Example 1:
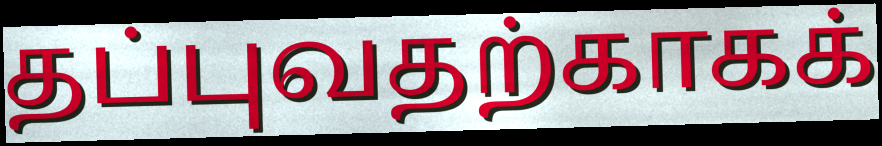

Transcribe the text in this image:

தப்புவதற்காகக்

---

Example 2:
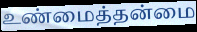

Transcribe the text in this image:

உண்மைத்தன்மை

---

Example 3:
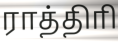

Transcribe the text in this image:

ராத்திரி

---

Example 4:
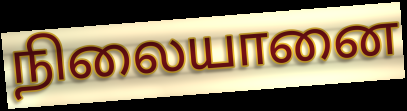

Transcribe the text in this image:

நிலையானை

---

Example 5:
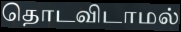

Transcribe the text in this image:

தொடவிடாமல்